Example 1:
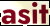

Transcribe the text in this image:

asit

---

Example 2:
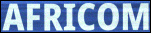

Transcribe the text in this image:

AFRICOM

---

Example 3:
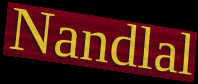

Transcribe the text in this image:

Nandlal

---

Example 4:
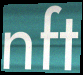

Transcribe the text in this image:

nft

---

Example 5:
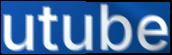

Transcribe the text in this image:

utube